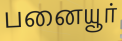
பனையூர்